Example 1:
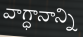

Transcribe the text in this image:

వాగ్ధానాన్ని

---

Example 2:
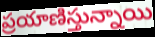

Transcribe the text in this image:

ప్రయాణిస్తున్నాయి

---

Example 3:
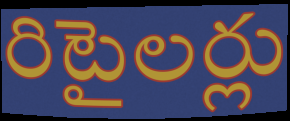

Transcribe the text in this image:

రిటైలర్లు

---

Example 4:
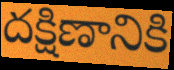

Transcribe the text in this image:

దక్షిణానికి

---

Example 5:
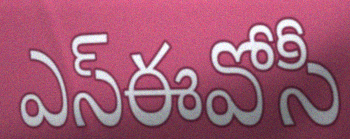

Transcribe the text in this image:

ఎస్ఈవోసీ